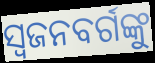
ସ୍ୱଜନବର୍ଗଙ୍କୁ